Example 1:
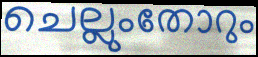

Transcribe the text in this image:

ചെല്ലുംതോറും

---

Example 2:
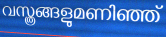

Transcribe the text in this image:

വസ്ത്രങ്ങളുമണിഞ്ഞ്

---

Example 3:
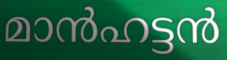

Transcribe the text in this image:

മാൻഹട്ടൻ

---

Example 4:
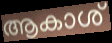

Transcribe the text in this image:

ആകാശ്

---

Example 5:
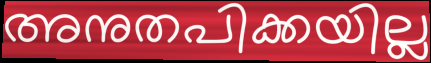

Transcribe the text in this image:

അനുതപിക്കയില്ല